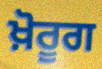
ਖ਼ੋਰੂਗ